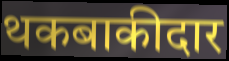
थकबाकीदार